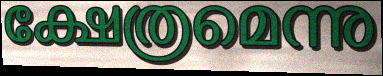
ക്ഷേത്രമെന്നു